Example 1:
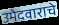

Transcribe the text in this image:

उमेदवाराचे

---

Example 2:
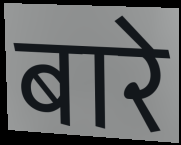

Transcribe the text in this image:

बारे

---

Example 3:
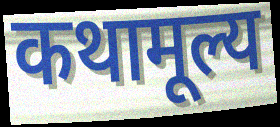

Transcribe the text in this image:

कथामूल्य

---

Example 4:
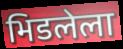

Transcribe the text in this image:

भिडलेला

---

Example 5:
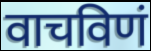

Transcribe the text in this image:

वाचविणं